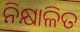
ନିକ୍ଷାଳିତ